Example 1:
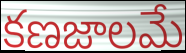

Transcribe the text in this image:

కణజాలమే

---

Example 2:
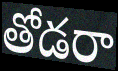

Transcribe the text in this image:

తోడరా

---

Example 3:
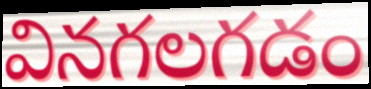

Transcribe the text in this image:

వినగలగడం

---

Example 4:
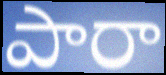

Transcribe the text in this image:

పారా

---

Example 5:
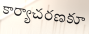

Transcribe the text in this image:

కార్యాచరణకూ